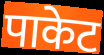
पाकेट